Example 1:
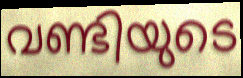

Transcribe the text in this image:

വണ്ടിയുടെ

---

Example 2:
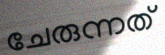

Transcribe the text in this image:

ചേരുന്നത്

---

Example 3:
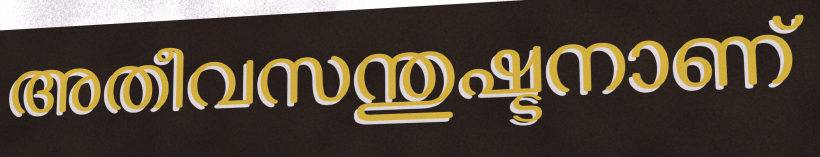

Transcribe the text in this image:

അതീവസന്തുഷ്ടനാണ്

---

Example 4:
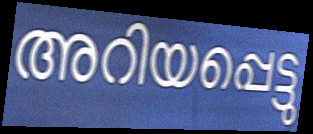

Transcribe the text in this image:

അറിയപ്പെട്ടു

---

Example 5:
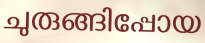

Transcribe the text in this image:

ചുരുങ്ങിപ്പോയ